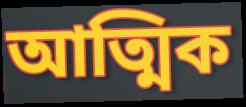
আত্মিক